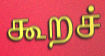
கூறச்